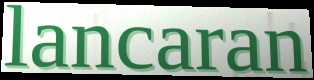
lancaran